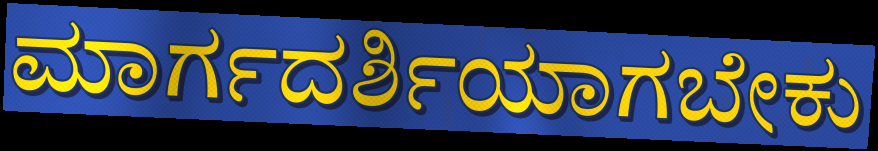
ಮಾರ್ಗದರ್ಶಿಯಾಗಬೇಕು